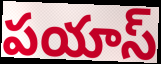
పయాస్